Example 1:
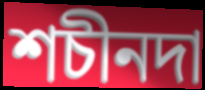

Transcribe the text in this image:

শচীনদা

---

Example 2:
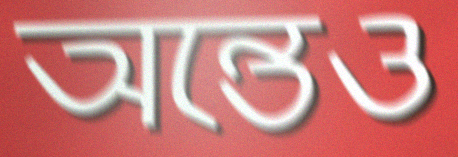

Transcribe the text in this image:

অন্তেও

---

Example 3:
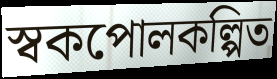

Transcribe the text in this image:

স্বকপোলকল্পিত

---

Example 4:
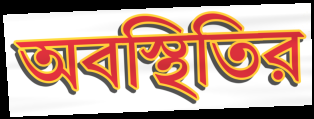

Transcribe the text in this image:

অবস্থিতির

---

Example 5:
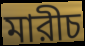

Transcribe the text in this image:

মারীচ